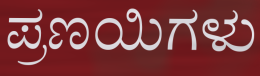
ಪ್ರಣಯಿಗಳು